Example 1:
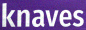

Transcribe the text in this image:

knaves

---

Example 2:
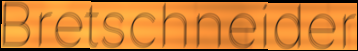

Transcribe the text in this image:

Bretschneider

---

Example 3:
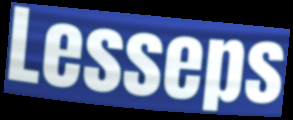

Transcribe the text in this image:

Lesseps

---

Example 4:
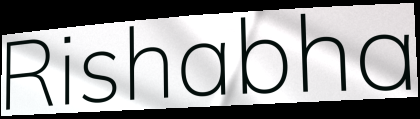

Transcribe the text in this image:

Rishabha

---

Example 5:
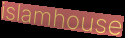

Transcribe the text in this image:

islamhouse